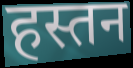
हस्तन